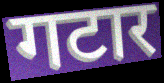
गटार